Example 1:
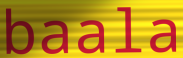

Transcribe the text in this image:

baala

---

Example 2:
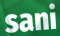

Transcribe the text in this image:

sani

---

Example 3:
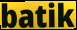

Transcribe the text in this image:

batik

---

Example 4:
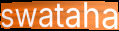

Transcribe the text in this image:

swataha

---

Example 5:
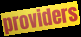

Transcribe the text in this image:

providers